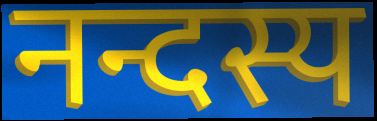
नन्दस्य